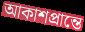
আকাশপ্রান্তে